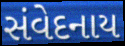
સંવેદનાય